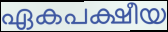
ഏകപക്ഷീയ